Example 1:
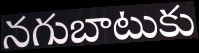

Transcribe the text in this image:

నగుబాటుకు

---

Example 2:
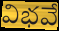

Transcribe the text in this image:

విభవే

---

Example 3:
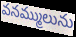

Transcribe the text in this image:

వనమ్ములును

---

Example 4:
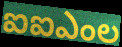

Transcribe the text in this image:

ఐఐఎంల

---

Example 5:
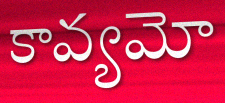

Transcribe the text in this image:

కావ్యమో